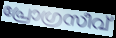
പ്രോഗ്രസീവ്